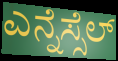
ಎನ್ನೆಸ್ಸೆಲ್